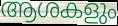
ആശകളും